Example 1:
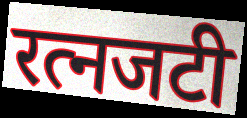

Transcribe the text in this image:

रत्नजटी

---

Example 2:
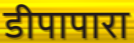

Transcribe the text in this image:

डीपापारा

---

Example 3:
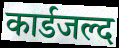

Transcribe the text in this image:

कार्डजल्द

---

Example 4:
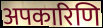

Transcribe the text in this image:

अपकारिणि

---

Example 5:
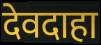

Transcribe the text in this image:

देवदाहा